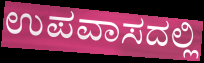
ಉಪವಾಸದಲ್ಲಿ